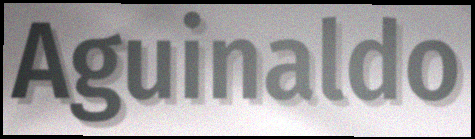
Aguinaldo